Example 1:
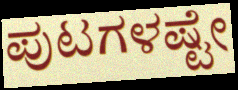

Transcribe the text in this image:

ಪುಟಗಳಷ್ಟೇ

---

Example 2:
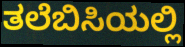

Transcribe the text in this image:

ತಲೆಬಿಸಿಯಲ್ಲಿ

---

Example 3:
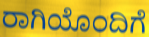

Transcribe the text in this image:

ರಾಗಿಯೊಂದಿಗೆ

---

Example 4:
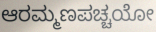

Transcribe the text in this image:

ಆರಮ್ಮಣಪಚ್ಚಯೋ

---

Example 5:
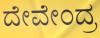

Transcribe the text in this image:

ದೇವೇಂದ್ರ